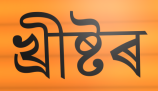
খ্ৰীষ্টৰ